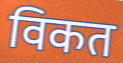
विकत